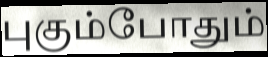
புகும்போதும்